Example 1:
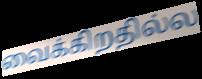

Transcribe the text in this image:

வைக்கிறதில்ல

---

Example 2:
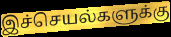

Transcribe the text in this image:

இச்செயல்களுக்கு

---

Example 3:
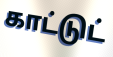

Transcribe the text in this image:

காட்டுட்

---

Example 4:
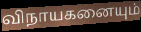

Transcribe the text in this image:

விநாயகனையும்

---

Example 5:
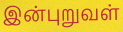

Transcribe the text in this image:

இன்புறுவள்